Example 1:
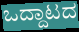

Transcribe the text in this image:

ಒದ್ದಾಟದ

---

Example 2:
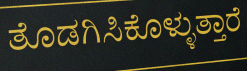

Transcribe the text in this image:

ತೊಡಗಿಸಿಕೊಳ್ಳುತ್ತಾರೆ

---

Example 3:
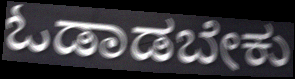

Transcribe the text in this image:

ಓಡಾಡಬೇಕು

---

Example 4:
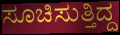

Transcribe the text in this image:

ಸೂಚಿಸುತ್ತಿದ್ದ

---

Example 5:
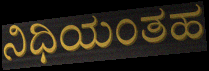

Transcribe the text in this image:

ನಿಧಿಯಂತಹ